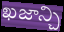
ఖజాన్చి